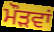
ਮੌੜਵਾਂ